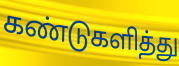
கண்டுகளித்து